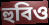
হুবিও